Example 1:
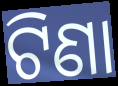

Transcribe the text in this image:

ଟିଣା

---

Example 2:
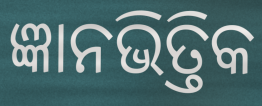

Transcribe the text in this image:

ଜ୍ଞାନଭିତ୍ତିକ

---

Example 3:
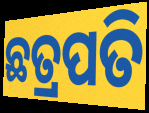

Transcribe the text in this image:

ଛତ୍ରପତି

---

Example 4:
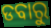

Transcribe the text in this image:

ଡବାରୁ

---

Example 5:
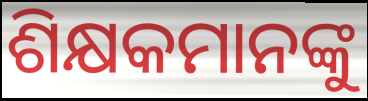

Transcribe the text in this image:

ଶିକ୍ଷକମାନଙ୍କୁ